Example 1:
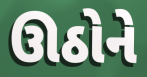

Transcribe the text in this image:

ઊઠોને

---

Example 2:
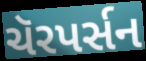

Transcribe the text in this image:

ચૅરપર્સન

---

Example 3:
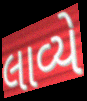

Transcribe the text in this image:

લાવ્યે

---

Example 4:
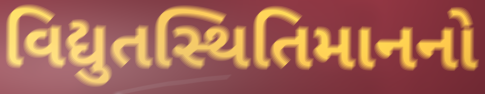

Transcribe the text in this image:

વિદ્યુતસ્થિતિમાનનો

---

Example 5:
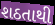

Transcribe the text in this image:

શઠતાથી